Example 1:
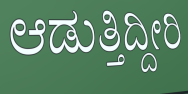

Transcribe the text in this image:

ಆಡುತ್ತಿದ್ದೀರಿ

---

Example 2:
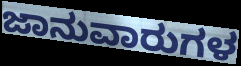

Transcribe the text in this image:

ಜಾನುವಾರುಗಳ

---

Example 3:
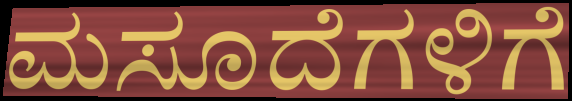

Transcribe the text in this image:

ಮಸೂದೆಗಳಿಗೆ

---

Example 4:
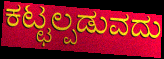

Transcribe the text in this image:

ಕಟ್ಟಲ್ಪಡುವದು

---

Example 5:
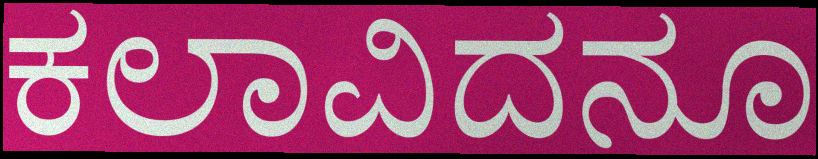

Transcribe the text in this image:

ಕಲಾವಿದನೂ